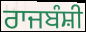
ਰਾਜਬੰਸ਼ੀ